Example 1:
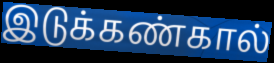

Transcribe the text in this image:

இடுக்கண்கால்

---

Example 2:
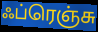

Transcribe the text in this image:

ஃப்ரெஞ்சு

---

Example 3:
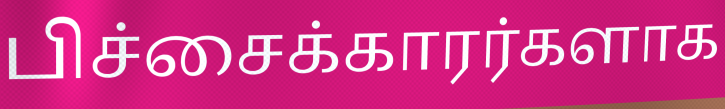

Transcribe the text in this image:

பிச்சைக்காரர்களாக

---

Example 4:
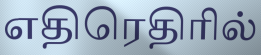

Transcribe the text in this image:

எதிரெதிரில்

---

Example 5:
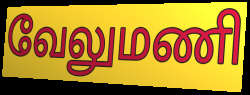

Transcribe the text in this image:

வேலுமணி